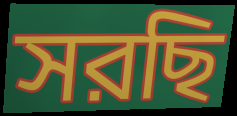
সরছি